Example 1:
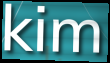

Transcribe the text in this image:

kim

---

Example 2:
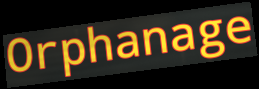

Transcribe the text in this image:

Orphanage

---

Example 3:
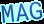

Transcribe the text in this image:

MAG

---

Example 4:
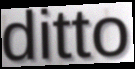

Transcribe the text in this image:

ditto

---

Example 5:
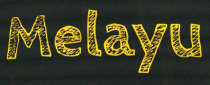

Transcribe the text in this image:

Melayu